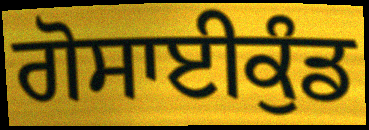
ਗੋਸਾਈਕੁੰਡ